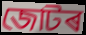
জোটৰ